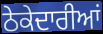
ਠੇਕੇਦਾਰੀਆਂ